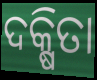
ଦକ୍ଷିତା